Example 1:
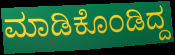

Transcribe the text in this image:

ಮಾಡಿಕೊಂಡಿದ್ದ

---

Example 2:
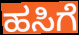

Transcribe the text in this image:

ಹಸಿಗೆ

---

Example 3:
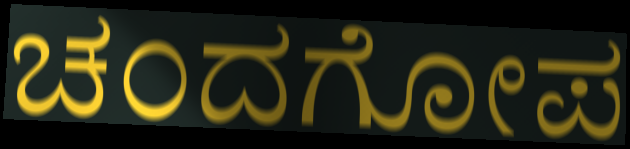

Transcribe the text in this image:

ಚಂದಗೋಪ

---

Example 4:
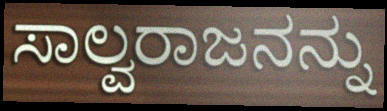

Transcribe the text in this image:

ಸಾಲ್ವರಾಜನನ್ನು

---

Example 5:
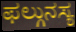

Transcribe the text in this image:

ಫಲ್ಗುನಸ್ಯ